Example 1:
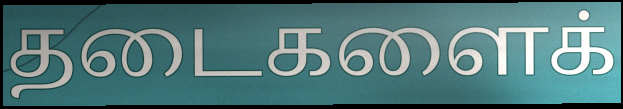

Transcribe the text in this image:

தடைகளைக்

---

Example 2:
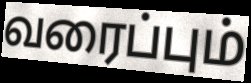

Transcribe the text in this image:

வரைப்பும்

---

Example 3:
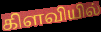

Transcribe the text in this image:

கிளவியில்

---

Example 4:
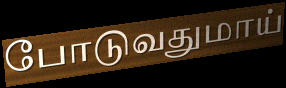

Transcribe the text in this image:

போடுவதுமாய்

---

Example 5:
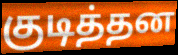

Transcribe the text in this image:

குடித்தன